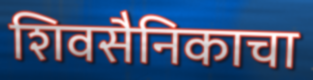
शिवसैनिकाचा